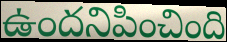
ఉందనిపించింది